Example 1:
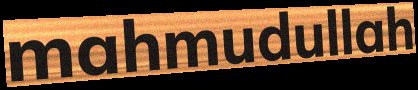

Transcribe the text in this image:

mahmudullah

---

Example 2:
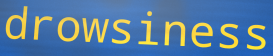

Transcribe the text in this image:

drowsiness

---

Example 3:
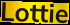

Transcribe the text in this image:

Lottie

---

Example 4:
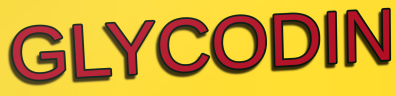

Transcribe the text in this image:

GLYCODIN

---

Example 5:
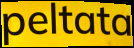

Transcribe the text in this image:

peltata